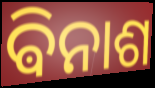
ଵିନାଶ